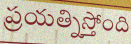
ప్రయత్నిస్తోంది